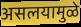
असलयामुळे